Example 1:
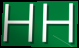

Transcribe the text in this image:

HH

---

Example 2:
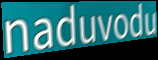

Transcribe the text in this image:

naduvodu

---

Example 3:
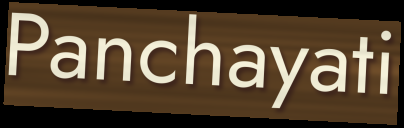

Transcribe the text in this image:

Panchayati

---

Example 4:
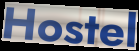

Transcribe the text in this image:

Hostel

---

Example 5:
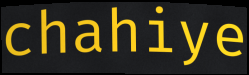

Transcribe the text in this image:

chahiye